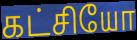
கட்சியோ